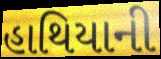
હાથિયાની